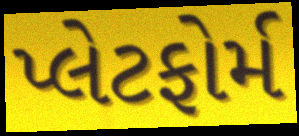
પ્લેટફોર્મ